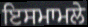
ਇਸਮਾਮਲੇ